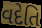
વદેતિ